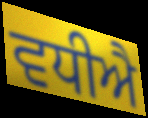
ਵਧੀਐ